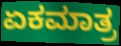
ಏಕಮಾತ್ರ